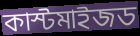
কাস্টমাইজড